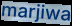
marjiwa